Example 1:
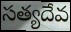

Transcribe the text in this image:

సత్యదేవ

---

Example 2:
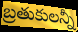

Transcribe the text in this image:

బ్రతుకులన్నీ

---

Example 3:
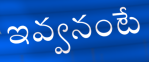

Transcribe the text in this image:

ఇవ్వనంటే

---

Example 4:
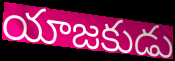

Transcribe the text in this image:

యాజకుడు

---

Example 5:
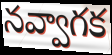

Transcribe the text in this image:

నవ్వాగక